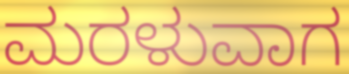
ಮರಳುವಾಗ